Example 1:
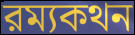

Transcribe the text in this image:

রম্যকথন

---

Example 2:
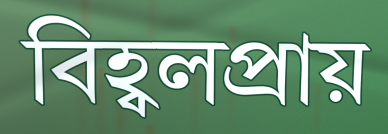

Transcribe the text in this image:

বিহ্বলপ্রায়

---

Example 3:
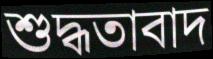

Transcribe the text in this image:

শুদ্ধতাবাদ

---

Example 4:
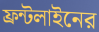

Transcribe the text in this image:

ফ্রন্টলাইনের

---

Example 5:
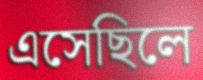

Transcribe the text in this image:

এসেছিলে